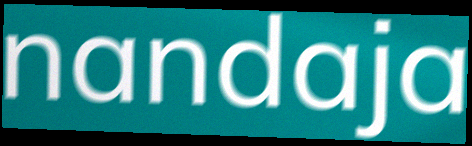
nandaja